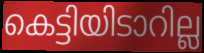
കെട്ടിയിടാറില്ല